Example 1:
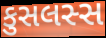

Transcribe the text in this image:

કુસલસ્સ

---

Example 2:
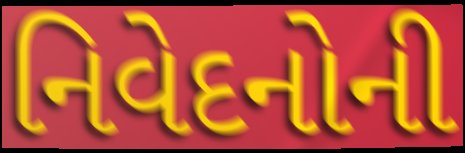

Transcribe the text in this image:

નિવેદનોની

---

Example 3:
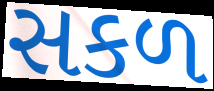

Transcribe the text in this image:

સકળ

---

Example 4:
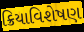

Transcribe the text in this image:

ક્રિયાવિશેષણ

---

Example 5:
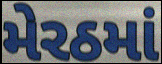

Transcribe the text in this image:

મેરઠમાં